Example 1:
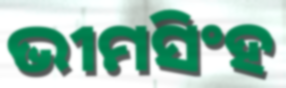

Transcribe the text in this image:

ଭୀମସିଂହ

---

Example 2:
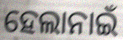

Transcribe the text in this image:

ହେଲାନାଇଁ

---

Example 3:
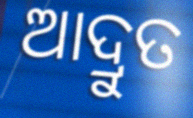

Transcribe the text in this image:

ଆଦ୍ରୁତ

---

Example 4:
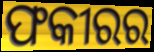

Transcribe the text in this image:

ଫକୀରର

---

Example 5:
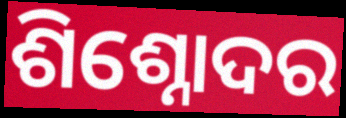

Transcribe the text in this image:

ଶିଶ୍ନୋଦର